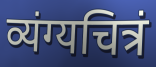
व्यंग्यचित्रं